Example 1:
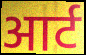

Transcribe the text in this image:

आर्ट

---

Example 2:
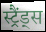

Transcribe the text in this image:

स्ट्रैंड्स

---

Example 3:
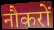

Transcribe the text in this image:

नौकरों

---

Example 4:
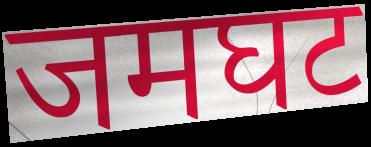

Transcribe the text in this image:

जमघट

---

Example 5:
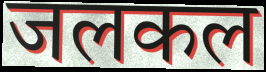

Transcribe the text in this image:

जलकल